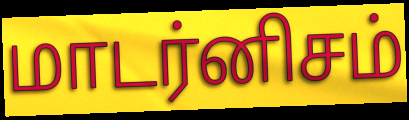
மாடர்னிசம்